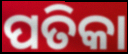
ପତିକା